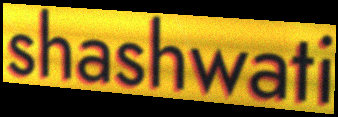
shashwati